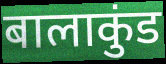
बालाकुंड